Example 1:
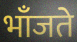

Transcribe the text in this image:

भाँजते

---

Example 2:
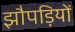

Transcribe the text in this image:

झौपड़ियों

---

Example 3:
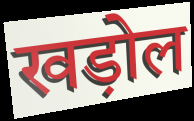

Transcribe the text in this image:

खड़ोल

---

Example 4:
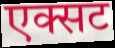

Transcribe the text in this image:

एक्सट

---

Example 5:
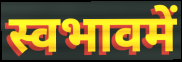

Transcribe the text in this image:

स्वभावमें